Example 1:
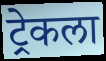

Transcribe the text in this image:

ट्रेकला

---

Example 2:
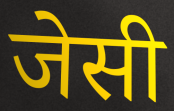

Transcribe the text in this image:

जेसी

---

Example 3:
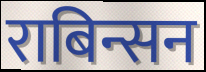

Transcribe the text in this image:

राबिन्सन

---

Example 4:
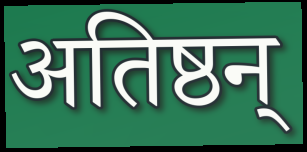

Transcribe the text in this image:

अतिष्ठन्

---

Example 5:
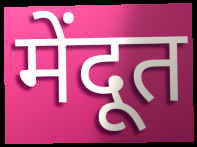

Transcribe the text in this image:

मेंदूत